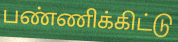
பண்ணிக்கிட்டு